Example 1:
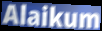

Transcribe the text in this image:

Alaikum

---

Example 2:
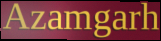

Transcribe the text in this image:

Azamgarh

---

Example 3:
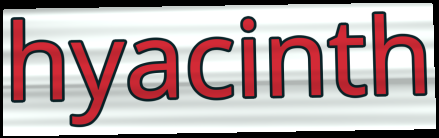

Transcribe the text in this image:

hyacinth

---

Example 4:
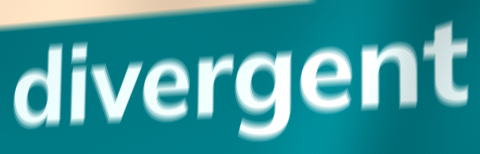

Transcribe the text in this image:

divergent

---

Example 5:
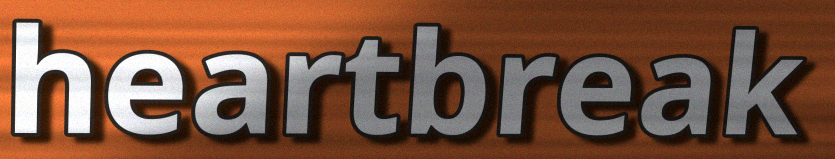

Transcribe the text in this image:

heartbreak